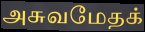
அசுவமேதக்